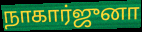
நாகார்ஜுனா